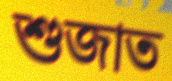
শুজাত